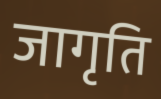
जागृति